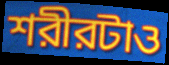
শরীরটাও